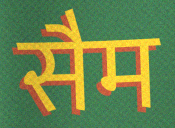
सैम